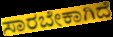
ಸಾರಬೇಕಾಗಿದೆ